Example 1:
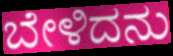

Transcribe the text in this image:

ಬೇಳಿದನು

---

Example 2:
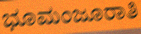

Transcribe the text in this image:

ಭೂಮಂಜೂರಾತಿ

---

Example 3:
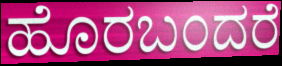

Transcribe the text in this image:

ಹೊರಬಂದರೆ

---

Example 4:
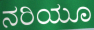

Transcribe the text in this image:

ನರಿಯೂ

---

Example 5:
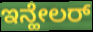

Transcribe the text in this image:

ಇನ್ಹೇಲರ್